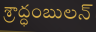
శ్రాద్ధంబులన్